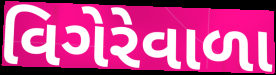
વિગેરેવાળા